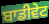
ਬਾਡੀਵੇਟ